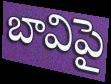
బావిపై